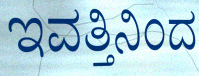
ಇವತ್ತಿನಿಂದ